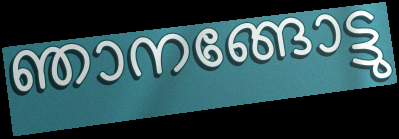
ഞാനങ്ങോട്ടു